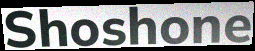
Shoshone